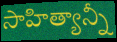
సాహిత్యాన్నీ